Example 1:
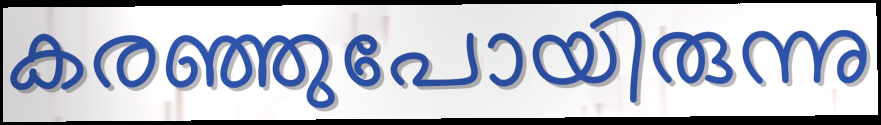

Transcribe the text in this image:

കരഞ്ഞുപോയിരുന്നു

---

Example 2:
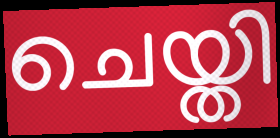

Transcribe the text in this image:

ചെയ്തി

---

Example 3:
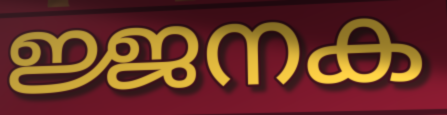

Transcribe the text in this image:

ജ്ജനക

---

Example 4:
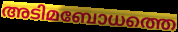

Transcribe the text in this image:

അടിമബോധത്തെ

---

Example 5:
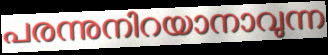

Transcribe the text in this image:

പരന്നുനിറയാനാവുന്ന